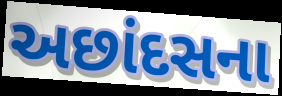
અછાંદસના